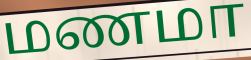
மணமா